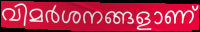
വിമർശനങ്ങളാണ്